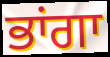
ਭਾਂਗਾ